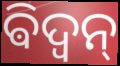
ଵିଦ୍ଵନ୍